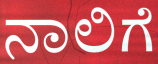
ನಾಲಿಗೆ